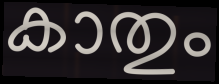
കാതും